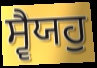
ਸ੍ਵੈਯਹੁ